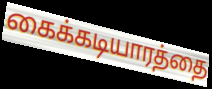
கைக்கடியாரத்தை